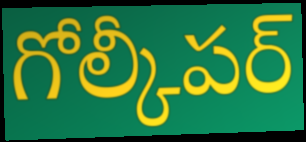
గోల్కీపర్